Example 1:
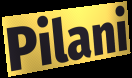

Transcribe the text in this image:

Pilani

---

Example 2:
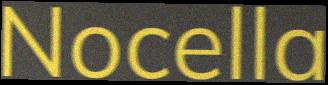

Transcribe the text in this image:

Nocella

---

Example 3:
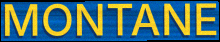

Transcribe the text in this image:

MONTANE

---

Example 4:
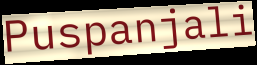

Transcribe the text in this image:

Puspanjali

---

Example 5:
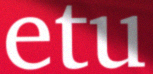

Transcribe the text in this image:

etu